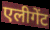
एलीगेंट